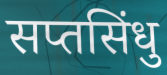
सप्तसिंधु